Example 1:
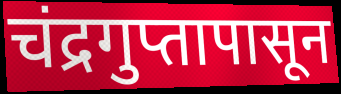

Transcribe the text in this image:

चंद्रगुप्तापासून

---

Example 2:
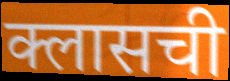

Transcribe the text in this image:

क्‍लासची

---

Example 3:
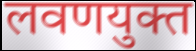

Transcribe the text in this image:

लवणयुक्त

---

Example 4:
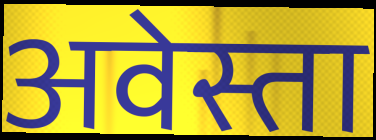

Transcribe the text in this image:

अवेस्ता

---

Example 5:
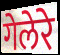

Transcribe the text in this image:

गेलेरे